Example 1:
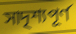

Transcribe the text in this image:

সাদৃশ্যপূৰ্ণ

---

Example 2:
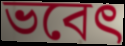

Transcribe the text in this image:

ভবেৎ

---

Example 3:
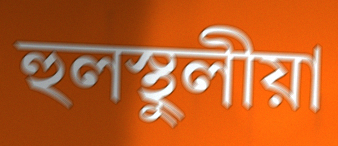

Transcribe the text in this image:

হুলস্থুলীয়া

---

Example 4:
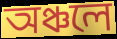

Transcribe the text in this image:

অঞ্চলে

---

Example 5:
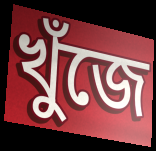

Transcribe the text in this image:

খুঁজে